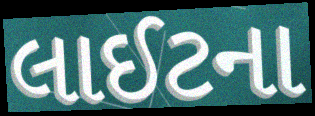
લાઈટના